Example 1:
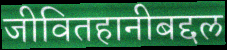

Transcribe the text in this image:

जीवितहानीबद्दल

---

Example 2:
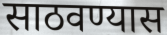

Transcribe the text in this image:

साठवण्यास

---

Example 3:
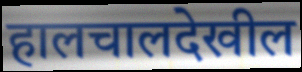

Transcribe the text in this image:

हालचालदेखील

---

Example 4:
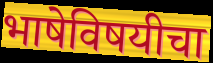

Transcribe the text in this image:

भाषेविषयीचा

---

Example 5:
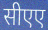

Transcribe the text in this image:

सीएए